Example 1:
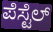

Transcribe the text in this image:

ಪೆಸ್ಟೆಲ್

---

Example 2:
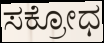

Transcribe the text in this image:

ಸಕ್ರೋಧ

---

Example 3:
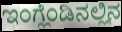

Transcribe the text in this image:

ಇಂಗ್ಲೆಂಡಿನಲ್ಲಿನ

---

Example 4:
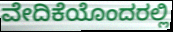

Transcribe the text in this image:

ವೇದಿಕೆಯೊಂದರಲ್ಲಿ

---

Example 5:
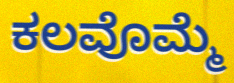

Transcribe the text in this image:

ಕಲವೊಮ್ಮೆ